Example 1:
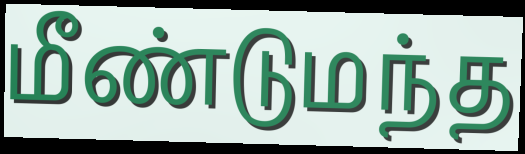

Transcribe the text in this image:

மீண்டுமந்த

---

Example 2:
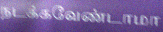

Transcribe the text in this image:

நடக்கவேண்டாமா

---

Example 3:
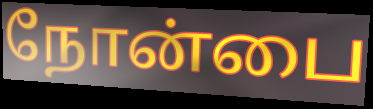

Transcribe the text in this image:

நோன்பை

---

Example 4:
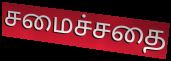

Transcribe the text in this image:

சமைச்சதை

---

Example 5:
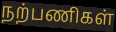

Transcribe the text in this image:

நற்பணிகள்